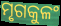
ମୃଗକୁଳଂ